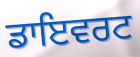
ਡਾਇਵਰਟ